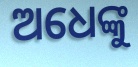
ଅଧେଙ୍କୁ